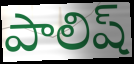
పాలిష్